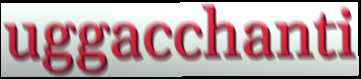
uggacchanti